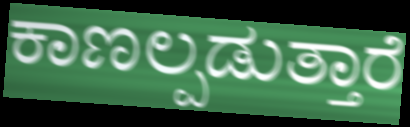
ಕಾಣಲ್ಪಡುತ್ತಾರೆ